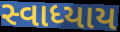
સ્વાધ્યાય